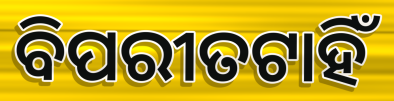
ବିପରୀତଟାହିଁ